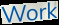
Work